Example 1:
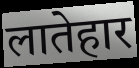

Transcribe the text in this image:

लातेहार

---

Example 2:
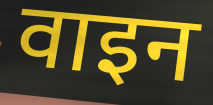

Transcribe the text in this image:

वाइन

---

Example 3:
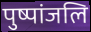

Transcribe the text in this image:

पुष्‍पांजलि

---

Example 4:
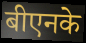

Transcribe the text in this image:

बीएनके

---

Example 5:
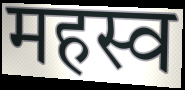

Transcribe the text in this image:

महस्व